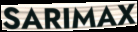
SARIMAX